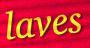
laves